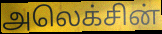
அலெக்சின்